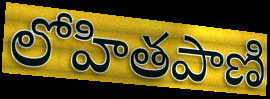
లోహితపాణి